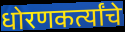
धोरणकर्त्यांचे